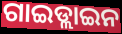
ଗାଇଡ୍ଲାଇନ